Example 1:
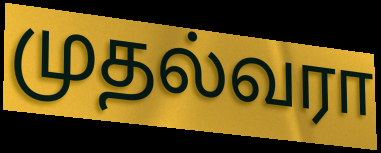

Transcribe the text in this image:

முதல்வரா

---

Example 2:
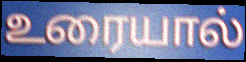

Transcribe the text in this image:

உரையால்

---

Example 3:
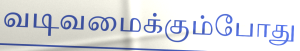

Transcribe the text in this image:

வடிவமைக்கும்போது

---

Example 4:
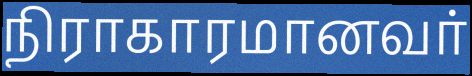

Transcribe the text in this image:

நிராகாரமானவர்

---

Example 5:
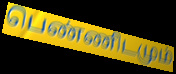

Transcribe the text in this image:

பெண்ணிடமும்